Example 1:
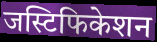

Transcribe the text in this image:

जस्टिफिकेशन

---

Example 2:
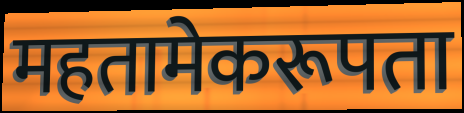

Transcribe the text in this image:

महतामेकरूपता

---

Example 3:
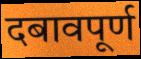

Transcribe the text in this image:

दबावपूर्ण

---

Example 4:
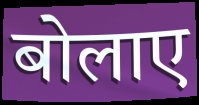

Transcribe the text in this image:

बोलाए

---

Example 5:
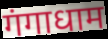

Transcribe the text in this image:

गंगाधाम